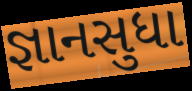
જ્ઞાનસુધા